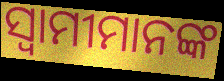
ସ୍ବାମୀମାନଙ୍କ